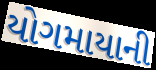
યોગમાયાની